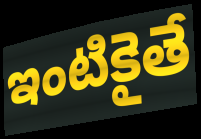
ఇంటికైతే